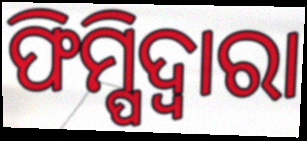
ଫିମ୍ପିଦ୍ଵାରା